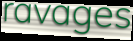
ravages